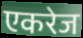
एकरेज